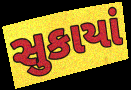
સુકાયાં